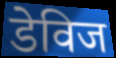
डेविज